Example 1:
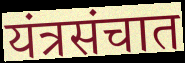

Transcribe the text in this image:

यंत्रसंचात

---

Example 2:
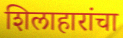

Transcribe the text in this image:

शिलाहारांचा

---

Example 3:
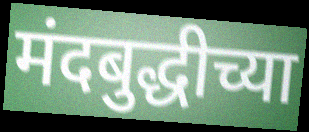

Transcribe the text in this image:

मंदबुद्धीच्या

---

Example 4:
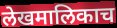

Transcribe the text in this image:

लेखमालिकाच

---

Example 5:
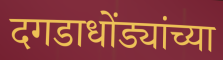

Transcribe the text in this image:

दगडाधोंड्यांच्या